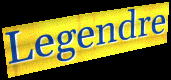
Legendre